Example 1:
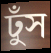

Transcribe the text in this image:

ঢুঁস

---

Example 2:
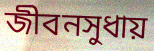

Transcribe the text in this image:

জীবনসুধায়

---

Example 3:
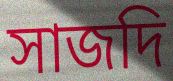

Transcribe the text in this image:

সাজদি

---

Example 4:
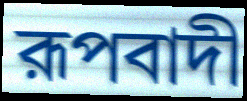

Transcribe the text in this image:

রূপবাদী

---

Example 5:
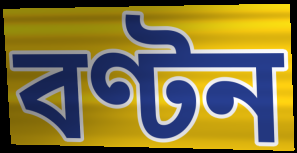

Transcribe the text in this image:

বণ্টন